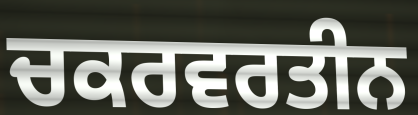
ਚਕਰਵਰਤੀਨ